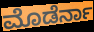
ಮೊಡೆರ್ನಾ